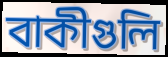
বাকীগুলি